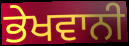
ਭੇਖਵਾਨੀ